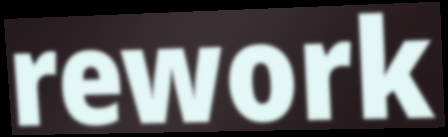
rework